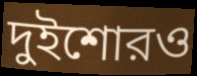
দুইশোরও